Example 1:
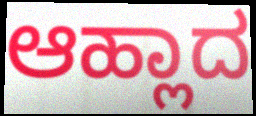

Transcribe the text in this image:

ಆಹ್ಲಾದ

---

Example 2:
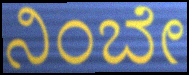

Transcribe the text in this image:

ನಿಂಬೇ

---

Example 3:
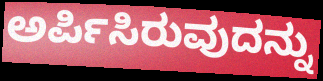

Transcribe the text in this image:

ಅರ್ಪಿಸಿರುವುದನ್ನು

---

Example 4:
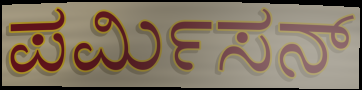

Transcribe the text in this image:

ಪರ್ಮಿಸನ್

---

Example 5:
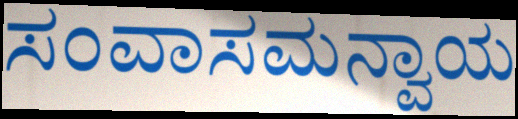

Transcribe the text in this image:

ಸಂವಾಸಮನ್ವಾಯ